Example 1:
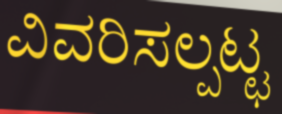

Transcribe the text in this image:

ವಿವರಿಸಲ್ಪಟ್ಟ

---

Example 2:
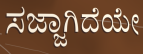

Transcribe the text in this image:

ಸಜ್ಜಾಗಿದೆಯೇ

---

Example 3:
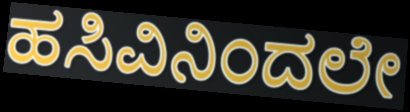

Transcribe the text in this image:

ಹಸಿವಿನಿಂದಲೇ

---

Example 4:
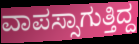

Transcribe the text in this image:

ವಾಪಸ್ಸಾಗುತ್ತಿದ್ದ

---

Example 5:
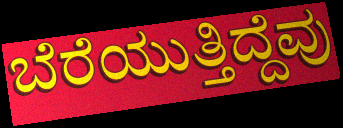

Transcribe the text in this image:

ಬೆರೆಯುತ್ತಿದ್ದೆವು